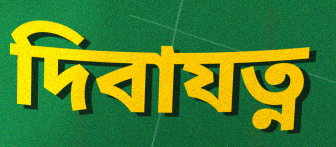
দিবাযত্ন